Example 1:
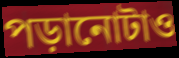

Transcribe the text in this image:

পড়ানোটাও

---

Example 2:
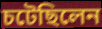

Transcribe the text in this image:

চটেছিলেন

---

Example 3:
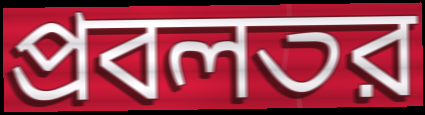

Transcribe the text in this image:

প্রবলতর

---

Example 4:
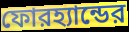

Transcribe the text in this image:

ফোরহ্যান্ডের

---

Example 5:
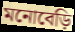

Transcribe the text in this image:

মনোবেড়ি